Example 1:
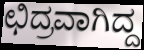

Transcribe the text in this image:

ಛಿದ್ರವಾಗಿದ್ದ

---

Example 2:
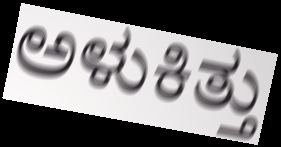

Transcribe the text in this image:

ಅಳುಕಿತ್ತು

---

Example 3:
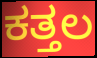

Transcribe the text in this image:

ಕತ್ತಲ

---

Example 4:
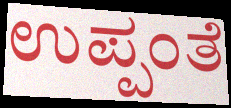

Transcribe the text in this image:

ಉಪ್ಪಂತೆ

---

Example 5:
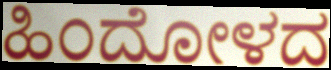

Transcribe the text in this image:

ಹಿಂದೋಳದ